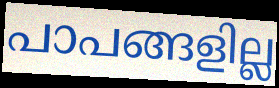
പാപങ്ങളില്ല